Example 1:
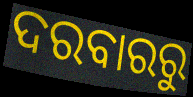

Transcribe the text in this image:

ଦରବାରରୁ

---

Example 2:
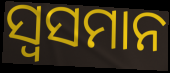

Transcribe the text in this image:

ସ୍ୱସମାନ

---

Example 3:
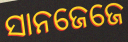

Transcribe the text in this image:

ସାନଜେଜେ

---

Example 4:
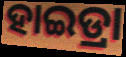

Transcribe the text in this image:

ହାଇଡ୍ରା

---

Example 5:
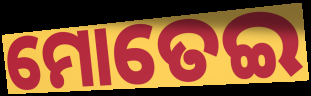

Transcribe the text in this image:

ମୋତେଇ